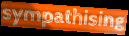
sympathising